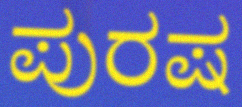
ಪುರಷ